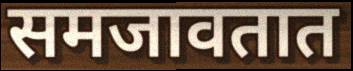
समजावतात